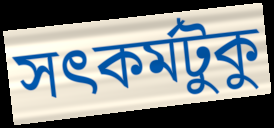
সৎকর্মটুকু